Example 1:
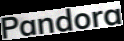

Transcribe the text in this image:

Pandora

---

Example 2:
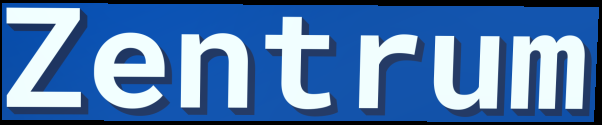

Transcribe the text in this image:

Zentrum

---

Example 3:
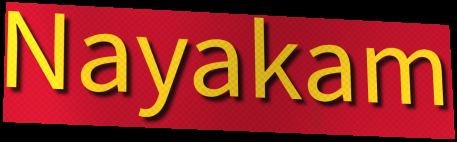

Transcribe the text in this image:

Nayakam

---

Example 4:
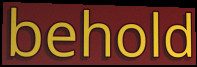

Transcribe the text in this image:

behold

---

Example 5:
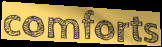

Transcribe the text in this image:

comforts